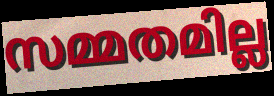
സമ്മതമില്ല